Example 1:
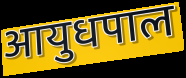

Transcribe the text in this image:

आयुधपाल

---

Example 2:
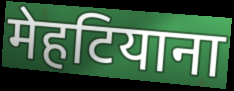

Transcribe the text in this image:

मेहटियाना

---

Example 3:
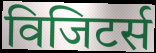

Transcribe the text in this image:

विजिटर्स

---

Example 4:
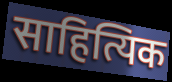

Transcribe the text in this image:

साहित्यिक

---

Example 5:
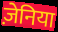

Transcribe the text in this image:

ज़ेनिया